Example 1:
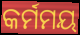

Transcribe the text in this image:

କର୍ମମୟ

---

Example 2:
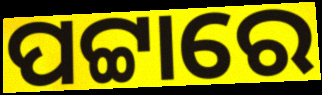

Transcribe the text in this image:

ପଟ୍ଟାରେ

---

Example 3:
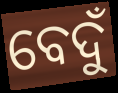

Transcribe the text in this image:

ବେଦୁଁ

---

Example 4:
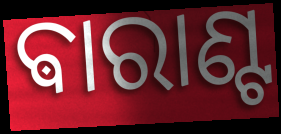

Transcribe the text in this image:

ଵାରାଣ୍ଟ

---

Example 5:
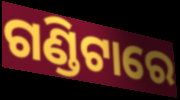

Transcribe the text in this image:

ଗଣ୍ଡିଟାରେ